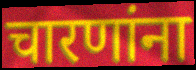
चारणांना